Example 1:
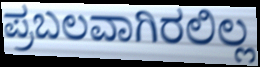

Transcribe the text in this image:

ಪ್ರಬಲವಾಗಿರಲಿಲ್ಲ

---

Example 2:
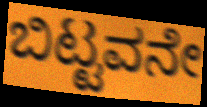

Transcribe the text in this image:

ಬಿಟ್ಟವನೇ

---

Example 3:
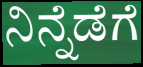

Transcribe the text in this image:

ನಿನ್ನೆಡೆಗೆ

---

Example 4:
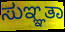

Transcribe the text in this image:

ಸುಞ್ಞತಾ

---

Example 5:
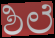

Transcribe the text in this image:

ಶಿಲೆ